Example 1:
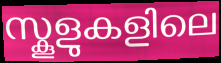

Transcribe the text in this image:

സ്കൂളുകളിലെ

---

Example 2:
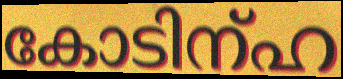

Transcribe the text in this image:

കോടിന്ഹ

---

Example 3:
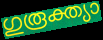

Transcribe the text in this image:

ഗുരൂക്ത്യാ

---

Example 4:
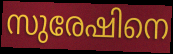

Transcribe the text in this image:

സുരേഷിനെ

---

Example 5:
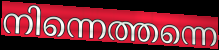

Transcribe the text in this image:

നിന്നെത്തന്നെ